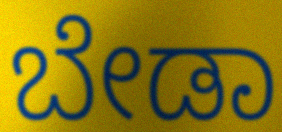
ಬೇಡಾ